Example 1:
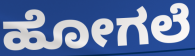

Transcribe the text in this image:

ಹೋಗಲೆ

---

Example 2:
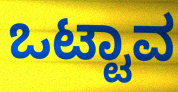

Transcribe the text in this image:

ಒಟ್ಟಾವ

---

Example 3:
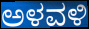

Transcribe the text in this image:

ಅಳವಳಿ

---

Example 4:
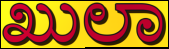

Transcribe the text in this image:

ಖುಲಾ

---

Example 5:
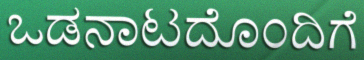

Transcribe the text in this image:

ಒಡನಾಟದೊಂದಿಗೆ